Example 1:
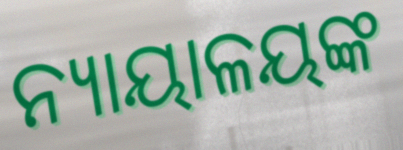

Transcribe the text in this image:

ନ୍ୟାୟାଳୟଙ୍କ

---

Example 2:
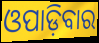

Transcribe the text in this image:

ଓପାଡ଼ିବାର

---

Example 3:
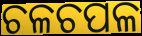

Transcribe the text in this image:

ଚଳଚପଳ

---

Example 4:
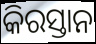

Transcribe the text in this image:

କିରସ୍ତାନ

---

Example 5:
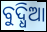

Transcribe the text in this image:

ବୁଦ୍ଧିଆ